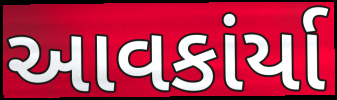
આવકાંર્યા